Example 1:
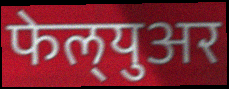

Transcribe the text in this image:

फेल्युअर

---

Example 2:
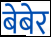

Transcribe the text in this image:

बेबेर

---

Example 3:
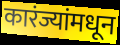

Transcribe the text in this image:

कारंज्यांमधून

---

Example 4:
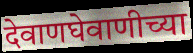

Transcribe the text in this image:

देवाणघेवाणीच्या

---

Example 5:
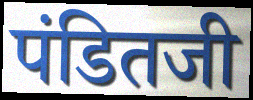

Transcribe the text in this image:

पंडितजी